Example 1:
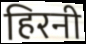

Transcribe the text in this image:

हिरनी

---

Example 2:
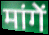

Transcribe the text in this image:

मांगें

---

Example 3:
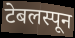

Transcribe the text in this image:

टेबलस्पून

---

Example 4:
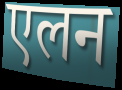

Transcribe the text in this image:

एलन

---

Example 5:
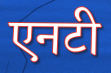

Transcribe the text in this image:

एनटी